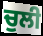
ਚੁਲੀ